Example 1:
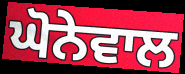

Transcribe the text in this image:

ਘੋਨੇਵਾਲ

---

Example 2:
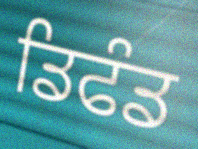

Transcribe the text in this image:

ਡਿਫੰਡ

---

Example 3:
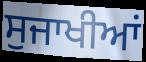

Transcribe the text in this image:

ਸੁਜਾਖੀਆਂ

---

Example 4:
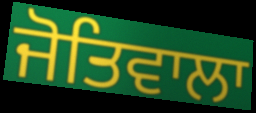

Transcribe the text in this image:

ਜੋਤਿਵਾਲਾ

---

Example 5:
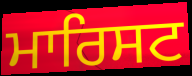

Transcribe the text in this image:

ਮਾਰਿਸਟ